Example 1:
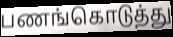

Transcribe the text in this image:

பணங்கொடுத்து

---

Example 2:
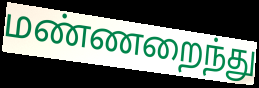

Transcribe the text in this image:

மண்ணறைந்து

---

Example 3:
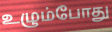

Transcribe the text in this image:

உழும்போது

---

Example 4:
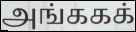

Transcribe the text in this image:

அங்ககக்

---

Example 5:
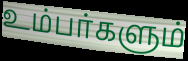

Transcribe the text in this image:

உம்பர்களும்